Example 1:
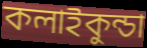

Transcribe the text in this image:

কলাইকুন্ডা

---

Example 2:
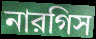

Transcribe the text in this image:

নারগিস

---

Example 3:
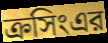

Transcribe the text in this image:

ক্রসিংএর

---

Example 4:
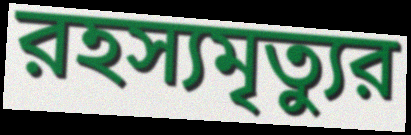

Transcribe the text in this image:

রহস্যমৃত্যুর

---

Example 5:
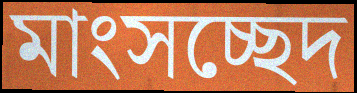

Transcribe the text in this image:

মাংসচ্ছেদ